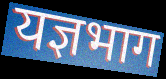
यज्ञभाग